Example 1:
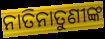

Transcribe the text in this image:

ନାତିନାତୁଣୀଙ୍କ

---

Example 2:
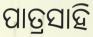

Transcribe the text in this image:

ପାତ୍ରସାହି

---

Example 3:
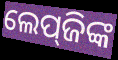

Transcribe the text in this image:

ଲେପ୍‌ଜିଙ୍କ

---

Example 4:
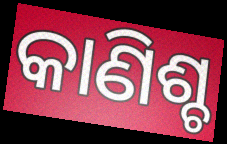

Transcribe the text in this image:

କାଣିଶ୍ଚ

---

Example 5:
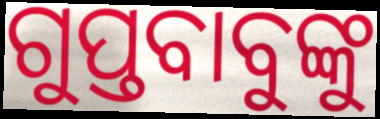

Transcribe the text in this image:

ଗୁପ୍ତବାବୁଙ୍କୁ